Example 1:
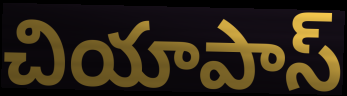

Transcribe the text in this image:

చియాపాస్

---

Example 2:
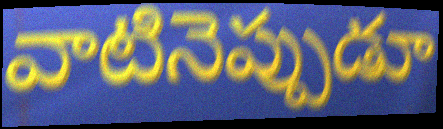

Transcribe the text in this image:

వాటినెప్పుడూ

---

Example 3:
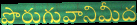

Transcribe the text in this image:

పొరుగువానిమీద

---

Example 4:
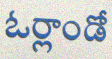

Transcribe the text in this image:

ఓర్లాండో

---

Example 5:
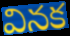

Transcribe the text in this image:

వినక